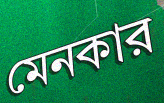
মেনকার